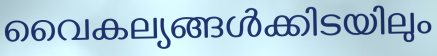
വൈകല്യങ്ങൾക്കിടയിലും